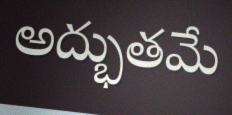
అద్భుతమే